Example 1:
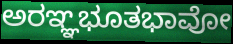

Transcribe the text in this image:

ಅರಞ್ಞಭೂತಭಾವೋ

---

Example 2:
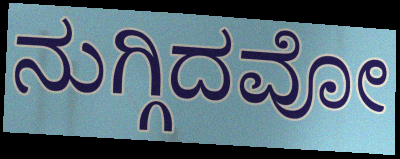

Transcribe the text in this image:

ನುಗ್ಗಿದವೋ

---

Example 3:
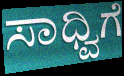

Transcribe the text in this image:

ಸಾಧ್ವಿಗೆ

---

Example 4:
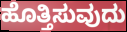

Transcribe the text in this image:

ಹೊತ್ತಿಸುವುದು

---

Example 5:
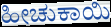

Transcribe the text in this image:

ಹೀಚುಕಾಯಿ